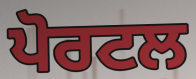
ਪੋਰਟਲ